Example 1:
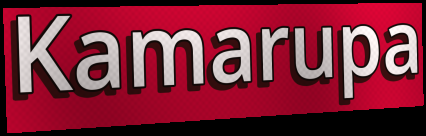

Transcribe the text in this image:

Kamarupa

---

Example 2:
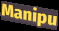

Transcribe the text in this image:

Manipu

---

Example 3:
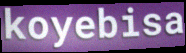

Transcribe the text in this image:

koyebisa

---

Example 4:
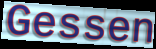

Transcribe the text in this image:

Gessen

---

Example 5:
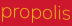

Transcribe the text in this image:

propolis